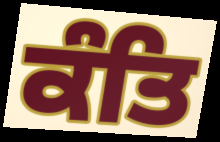
ਕੰਤਿ